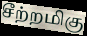
சீற்றமிகு